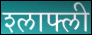
श्लाफ्ली